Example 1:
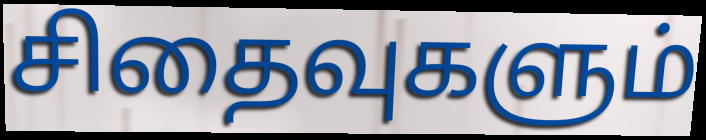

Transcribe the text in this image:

சிதைவுகளும்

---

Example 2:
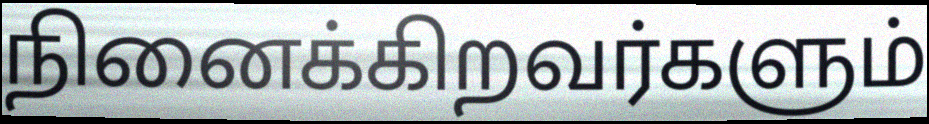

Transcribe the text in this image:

நினைக்கிறவர்களும்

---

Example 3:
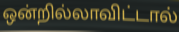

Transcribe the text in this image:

ஒன்றில்லாவிட்டால்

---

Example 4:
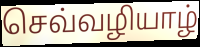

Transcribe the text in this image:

செவ்வழியாழ்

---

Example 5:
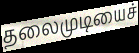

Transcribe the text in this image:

தலைமுடியைச்